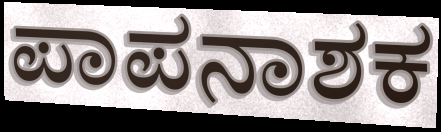
ಪಾಪನಾಶಕ